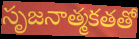
సృజనాత్మకతతో